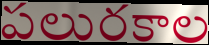
పలురకాల